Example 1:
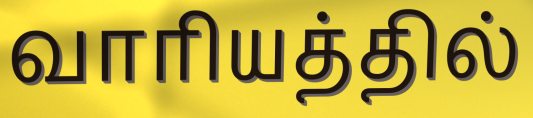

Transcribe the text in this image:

வாரியத்தில்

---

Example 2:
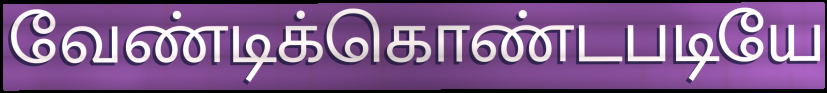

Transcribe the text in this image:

வேண்டிக்கொண்டபடியே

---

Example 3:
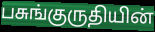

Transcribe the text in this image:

பசுங்குருதியின்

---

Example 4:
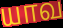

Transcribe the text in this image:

யாவ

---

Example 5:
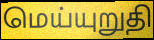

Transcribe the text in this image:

மெய்யுறுதி